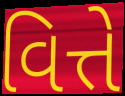
વિત્તે